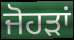
ਜੋਹੜਾਂ